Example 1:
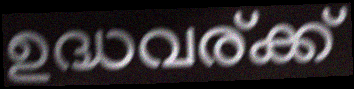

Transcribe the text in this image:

ഉദ്ധവര്ക്ക്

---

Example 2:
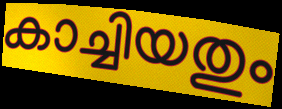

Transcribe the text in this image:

കാച്ചിയതും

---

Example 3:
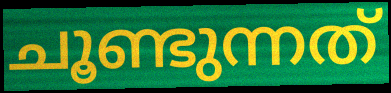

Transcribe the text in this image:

ചൂണ്ടുന്നത്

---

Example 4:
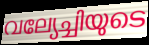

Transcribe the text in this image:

വല്യേച്ചിയുടെ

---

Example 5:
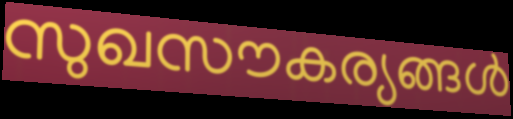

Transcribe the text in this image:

സുഖസൗകര്യങ്ങൾ